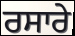
ਰਸਾਰੇ